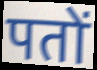
पतों